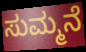
ಸುಮ್ಮನೆ